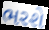
ભરશે